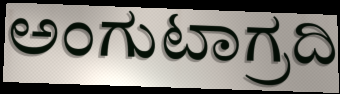
ಅಂಗುಟಾಗ್ರದಿ